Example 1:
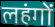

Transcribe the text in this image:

लहंगों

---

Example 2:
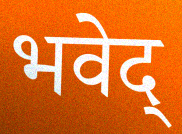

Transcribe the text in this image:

भवेद्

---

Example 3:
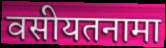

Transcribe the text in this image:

वसीयतनामा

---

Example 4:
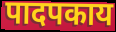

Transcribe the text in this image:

पादपकाय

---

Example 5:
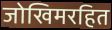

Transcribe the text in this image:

जोखिमरहित